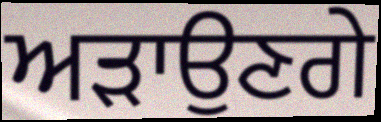
ਅੜਾਉਣਗੇ